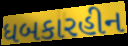
ધબકારહીન